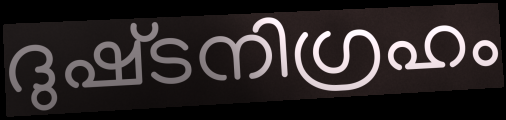
ദുഷ്‌ടനിഗ്രഹം